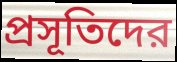
প্রসূতিদের